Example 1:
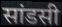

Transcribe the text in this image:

सांडसी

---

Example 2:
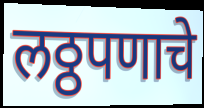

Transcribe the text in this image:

लठ्ठपणाचे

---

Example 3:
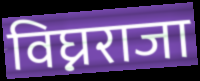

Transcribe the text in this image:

विघ्नराजा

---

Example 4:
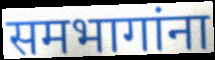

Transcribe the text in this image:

समभागांना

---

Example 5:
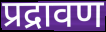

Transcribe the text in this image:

प्रद्रावण